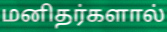
மனிதர்களால்